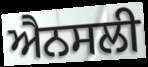
ਐਨਸਲੀ